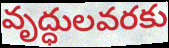
వృద్ధులవరకు